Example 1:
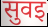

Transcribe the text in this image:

सुवइ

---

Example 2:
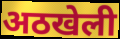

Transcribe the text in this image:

अठखेली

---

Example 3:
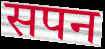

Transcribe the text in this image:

सपन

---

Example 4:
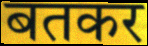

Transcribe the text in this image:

बतकर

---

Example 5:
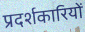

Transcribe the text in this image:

प्रदर्शकारियों